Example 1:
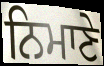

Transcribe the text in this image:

ਨਿਮਾਣੇ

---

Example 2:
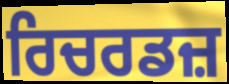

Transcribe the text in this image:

ਰਿਚਰਡਜ਼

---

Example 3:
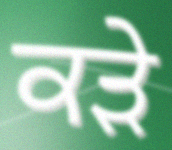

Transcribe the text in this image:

ਕੜੇ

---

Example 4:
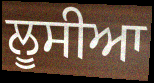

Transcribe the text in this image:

ਲੂਸੀਆ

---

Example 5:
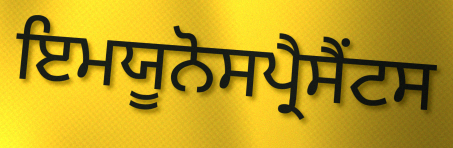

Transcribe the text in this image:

ਇਮਯੂਨੋਸਪ੍ਰੈਸੈਂਟਸ